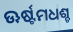
ଊର୍ଷ୍ଟମଧଶ୍ଚ